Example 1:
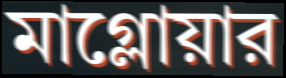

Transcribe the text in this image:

মাগ্লোয়ার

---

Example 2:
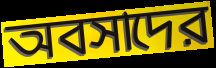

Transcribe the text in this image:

অবসাদের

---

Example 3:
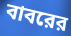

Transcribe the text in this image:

বাবরের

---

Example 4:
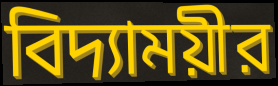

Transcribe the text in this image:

বিদ্যাময়ীর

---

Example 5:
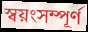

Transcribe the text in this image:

স্বয়ংসম্পূর্ণ